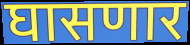
घासणार